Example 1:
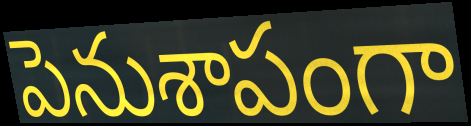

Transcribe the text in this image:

పెనుశాపంగా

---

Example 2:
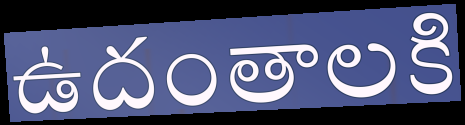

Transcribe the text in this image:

ఉదంతాలకి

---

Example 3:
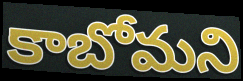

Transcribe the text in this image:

కాబోమని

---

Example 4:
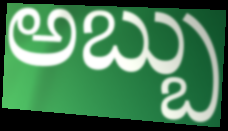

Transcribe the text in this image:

అబ్బు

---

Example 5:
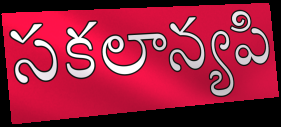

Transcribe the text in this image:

సకలాన్యపి